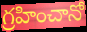
గ్రహించానో